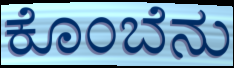
ಕೊಂಬೆನು